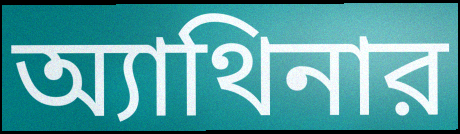
অ্যাথিনার